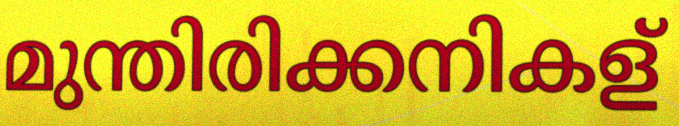
മുന്തിരിക്കനികള്